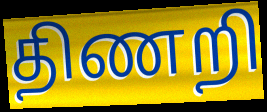
திணறி